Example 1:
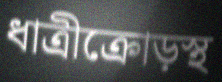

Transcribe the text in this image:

ধাত্রীক্রোড়স্থ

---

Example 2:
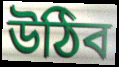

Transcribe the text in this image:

উঠিব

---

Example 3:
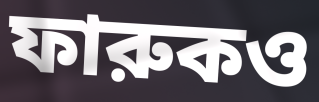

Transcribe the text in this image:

ফারুকও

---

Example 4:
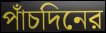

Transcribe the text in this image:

পাঁচদিনের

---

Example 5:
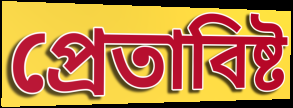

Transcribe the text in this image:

প্রেতাবিষ্ট